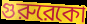
গুরুরেকো